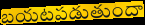
బయటపడుతుందా